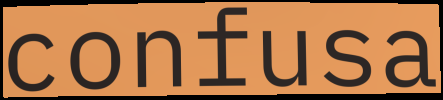
confusa